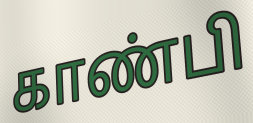
காண்பி